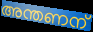
അന്തണന്